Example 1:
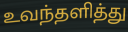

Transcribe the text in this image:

உவந்தளித்து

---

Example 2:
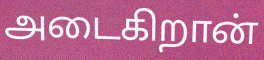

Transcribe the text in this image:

அடைகிறான்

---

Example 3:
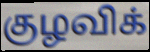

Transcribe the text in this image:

குழவிக்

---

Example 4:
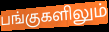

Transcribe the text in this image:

பங்குகளிலும்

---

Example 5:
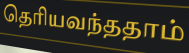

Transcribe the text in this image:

தெரியவந்ததாம்